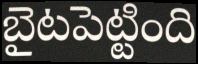
బైటపెట్టింది